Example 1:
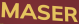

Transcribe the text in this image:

MASER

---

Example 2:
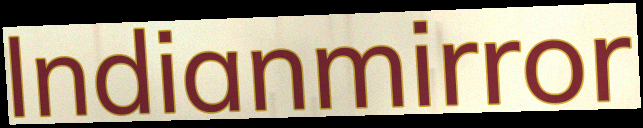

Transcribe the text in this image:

Indianmirror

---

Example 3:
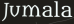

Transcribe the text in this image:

Jumala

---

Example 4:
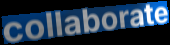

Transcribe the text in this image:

collaborate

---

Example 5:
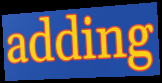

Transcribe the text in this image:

adding